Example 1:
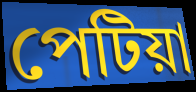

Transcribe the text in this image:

পেটিয়া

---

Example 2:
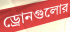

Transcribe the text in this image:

ড্রোনগুলোর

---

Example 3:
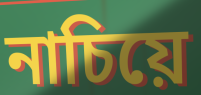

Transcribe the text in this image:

নাচিয়ে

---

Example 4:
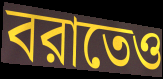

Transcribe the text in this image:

বরাতেও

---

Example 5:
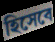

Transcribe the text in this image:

হিসেবে